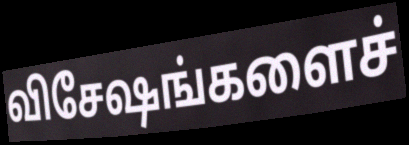
விசேஷங்களைச்